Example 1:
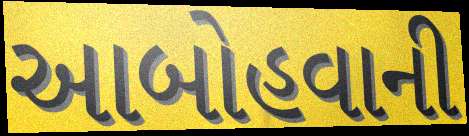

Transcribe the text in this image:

આબોહવાની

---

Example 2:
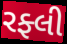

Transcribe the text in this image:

રફ્લી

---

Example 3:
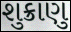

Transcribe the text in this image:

શુક્રાણુ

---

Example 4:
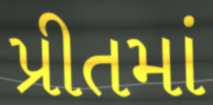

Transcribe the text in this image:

પ્રીતમાં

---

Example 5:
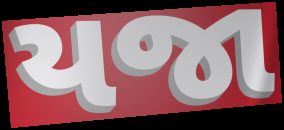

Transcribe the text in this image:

યજા